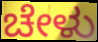
ಚೇಳು